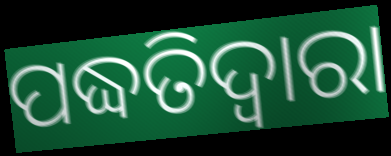
ପଦ୍ଧତିଦ୍ଵାରା